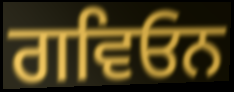
ਗਵਿਓਨ